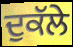
ਦੁਕੱਲੇ